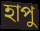
হাপু